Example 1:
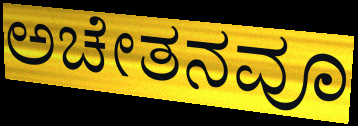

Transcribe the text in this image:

ಅಚೇತನವೂ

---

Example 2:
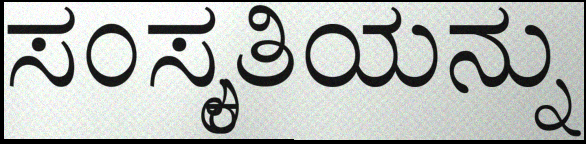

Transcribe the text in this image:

ಸಂಸ್ಕೃತಿಯನ್ನು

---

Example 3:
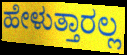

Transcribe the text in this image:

ಹೇಳುತ್ತಾರಲ್ಲ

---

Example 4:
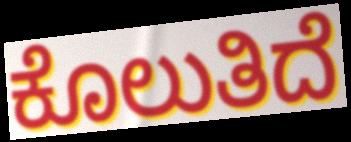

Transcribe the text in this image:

ಕೊಲುತಿದೆ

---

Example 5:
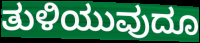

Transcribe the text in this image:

ತುಳಿಯುವುದೂ